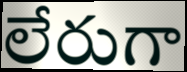
లేరుగా